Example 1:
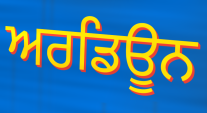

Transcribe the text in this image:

ਅਰਡਿਊਨ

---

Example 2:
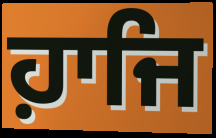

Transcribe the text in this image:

ਹ਼ਾਜਿ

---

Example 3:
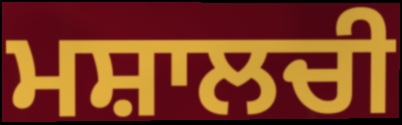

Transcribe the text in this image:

ਮਸ਼ਾਲਚੀ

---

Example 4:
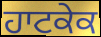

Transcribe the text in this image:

ਹਾਟਕੇਕ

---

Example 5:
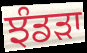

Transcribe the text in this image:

ਝੰਡੜਾ